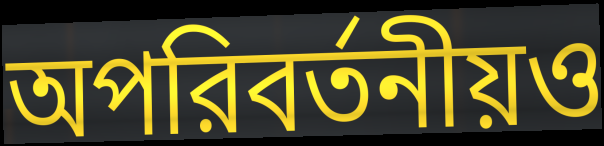
অপরিবর্তনীয়ও